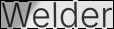
Welder